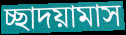
চ্ছাদয়ামাস